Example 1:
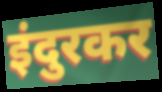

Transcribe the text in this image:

इंदुरकर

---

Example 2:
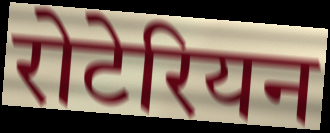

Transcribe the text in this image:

रोटेरियन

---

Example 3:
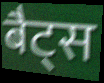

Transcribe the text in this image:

बैट्स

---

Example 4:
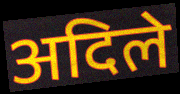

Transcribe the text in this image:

अदिले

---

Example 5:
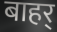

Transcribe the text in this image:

बाहर्